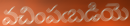
వచింపఁబడియె